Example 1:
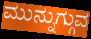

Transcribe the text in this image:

ಮುನ್ನುಗ್ಗುವ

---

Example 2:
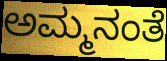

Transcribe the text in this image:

ಅಮ್ಮನಂತೆ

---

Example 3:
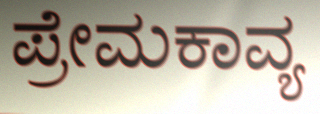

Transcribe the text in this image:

ಪ್ರೇಮಕಾವ್ಯ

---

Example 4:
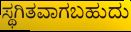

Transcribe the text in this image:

ಸ್ಥಗಿತವಾಗಬಹುದು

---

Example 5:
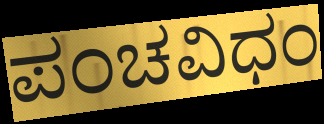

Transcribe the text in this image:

ಪಂಚವಿಧಂ